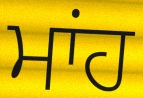
ਮਾਂਹ